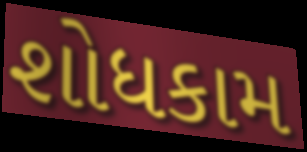
શોધકામ